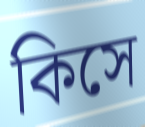
কিসে